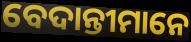
ବେଦାନ୍ତୀମାନେ